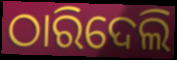
ଠାରିଦେଲି